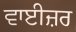
ਵਾਈਜ਼ਰ